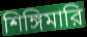
শিঙ্গিমারি